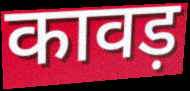
कावड़